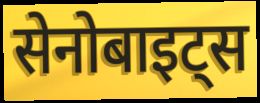
सेनोबाइट्स